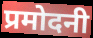
प्रमोदनी